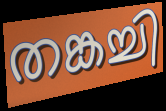
തങ്കച്ചി